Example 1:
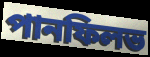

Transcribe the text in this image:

পানফিলভ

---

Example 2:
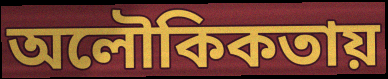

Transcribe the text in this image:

অলৌকিকতায়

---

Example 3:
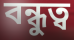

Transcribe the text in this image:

বন্ধুত্ব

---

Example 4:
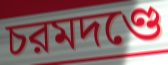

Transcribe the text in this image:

চরমদণ্ডে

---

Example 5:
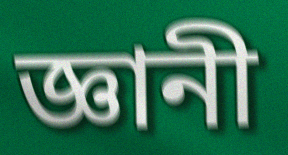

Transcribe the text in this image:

জ্ঞানী